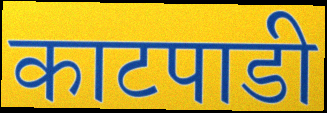
काटपाडी